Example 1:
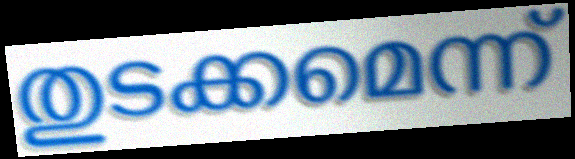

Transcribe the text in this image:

തുടക്കമെന്ന്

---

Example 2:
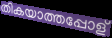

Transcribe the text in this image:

തികയാത്തപ്പോള്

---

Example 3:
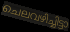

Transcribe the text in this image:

ചെലവഴിച്ചിട്ടാ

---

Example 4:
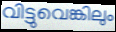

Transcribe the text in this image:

വിട്ടുവെങ്കിലും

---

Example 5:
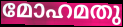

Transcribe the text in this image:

മോഹമതു